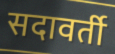
सदावर्ती